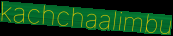
kachchaalimbu